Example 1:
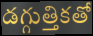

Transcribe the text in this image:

డగ్గుత్తికతో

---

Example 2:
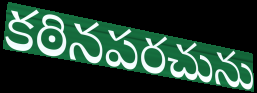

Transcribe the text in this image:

కఠినపరచును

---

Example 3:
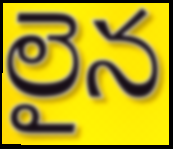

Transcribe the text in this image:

లైన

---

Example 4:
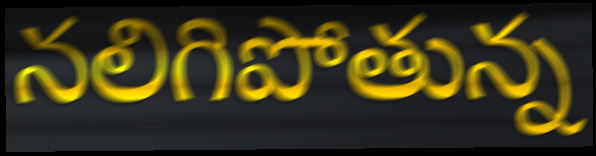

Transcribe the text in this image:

నలిగిపోతున్న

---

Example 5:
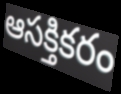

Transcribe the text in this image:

ఆసక్తికరం